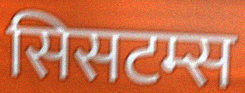
सिसटम्स